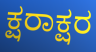
ಕ್ಷರಾಕ್ಷರ